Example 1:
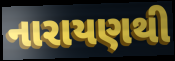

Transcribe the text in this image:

નારાયણથી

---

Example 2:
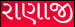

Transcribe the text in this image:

રાણાજી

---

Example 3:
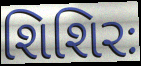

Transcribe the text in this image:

શિશિરઃ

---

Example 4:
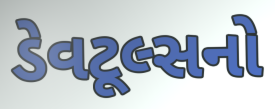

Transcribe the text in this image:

ડેવટૂલ્સનો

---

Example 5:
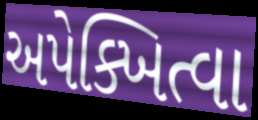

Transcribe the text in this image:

અપેક્ખિત્વા